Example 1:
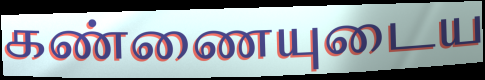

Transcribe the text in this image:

கண்ணையுடைய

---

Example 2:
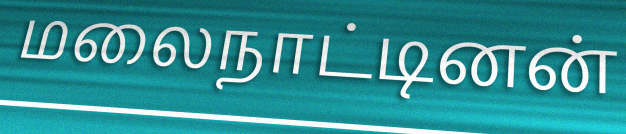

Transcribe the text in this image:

மலைநாட்டினன்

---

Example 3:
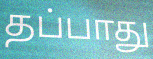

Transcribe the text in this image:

தப்பாது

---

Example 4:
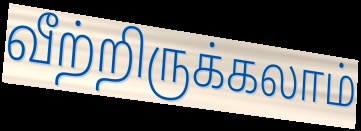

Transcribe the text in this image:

வீற்றிருக்கலாம்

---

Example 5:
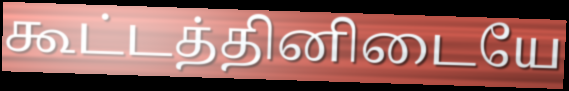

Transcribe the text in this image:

கூட்டத்தினிடையே